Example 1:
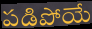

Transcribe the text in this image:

పడిపోయే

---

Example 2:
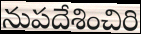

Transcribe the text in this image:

నుపదేశించిరి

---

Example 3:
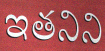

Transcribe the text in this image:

ఇతనిని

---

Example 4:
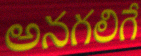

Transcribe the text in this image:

అనగలిగే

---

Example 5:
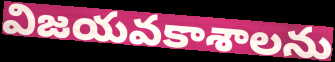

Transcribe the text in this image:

విజయవకాశాలను